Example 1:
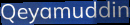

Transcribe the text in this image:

Qeyamuddin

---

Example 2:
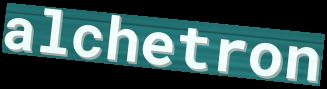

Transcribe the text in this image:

alchetron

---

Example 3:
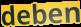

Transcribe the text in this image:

deben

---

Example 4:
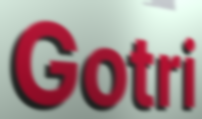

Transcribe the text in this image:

Gotri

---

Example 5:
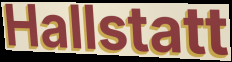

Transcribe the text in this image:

Hallstatt